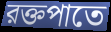
রক্তপাতে